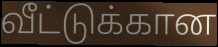
வீட்டுக்கான